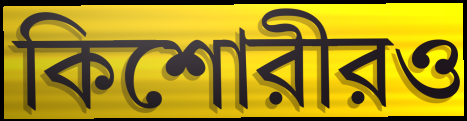
কিশোরীরও